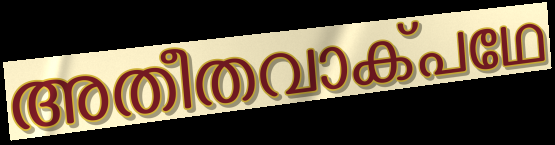
അതീതവാക്പഥേ